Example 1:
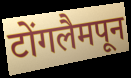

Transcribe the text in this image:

टोंगलैमपून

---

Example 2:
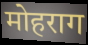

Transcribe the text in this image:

मोहराग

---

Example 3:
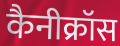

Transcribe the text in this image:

कैनीक्रॉस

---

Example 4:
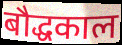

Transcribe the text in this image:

बौद्धकाल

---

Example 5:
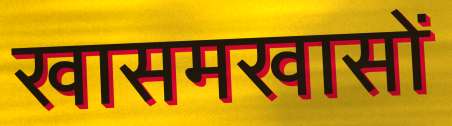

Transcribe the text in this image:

खासमखासों